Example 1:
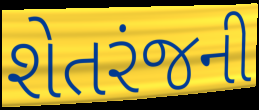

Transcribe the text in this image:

શેતરંજની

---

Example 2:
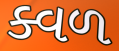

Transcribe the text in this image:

ક્વળ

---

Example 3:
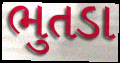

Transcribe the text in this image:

ભુતડા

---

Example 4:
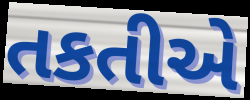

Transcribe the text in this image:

તકતીએ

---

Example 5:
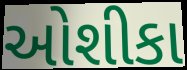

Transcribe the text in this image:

ઓશીકા